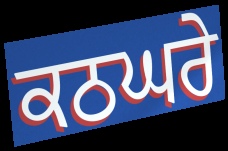
ਕਠਘਰੇ